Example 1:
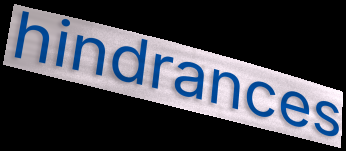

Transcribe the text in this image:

hindrances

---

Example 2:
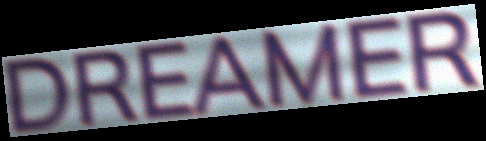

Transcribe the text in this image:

DREAMER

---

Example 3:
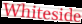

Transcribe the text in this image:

Whiteside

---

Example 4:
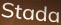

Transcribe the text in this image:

Stada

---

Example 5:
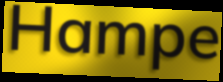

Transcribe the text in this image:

Hampe